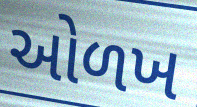
ઓળખ